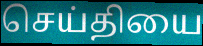
செய்தியை